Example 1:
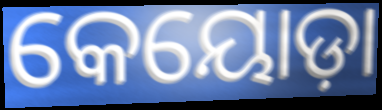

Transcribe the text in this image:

କେୟୋଡ଼ା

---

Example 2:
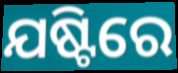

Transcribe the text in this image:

ଯଷ୍ଟିରେ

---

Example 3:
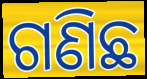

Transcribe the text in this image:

ଗଣିଛ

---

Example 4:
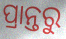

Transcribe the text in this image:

ପ୍ରାନ୍ତରୁ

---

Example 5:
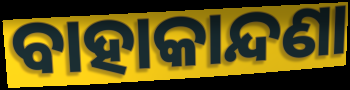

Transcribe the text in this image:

ବାହାକାନ୍ଦଣା